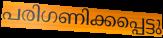
പരിഗണിക്കപ്പെട്ടു